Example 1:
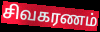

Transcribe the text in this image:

சிவகரணம்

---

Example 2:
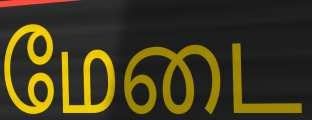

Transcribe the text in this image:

மேடை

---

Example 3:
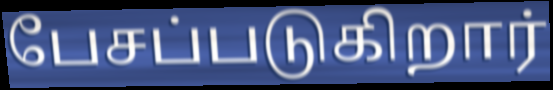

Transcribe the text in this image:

பேசப்படுகிறார்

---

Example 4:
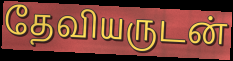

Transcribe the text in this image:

தேவியருடன்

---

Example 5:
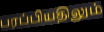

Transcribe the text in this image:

பரப்பியதிலும்